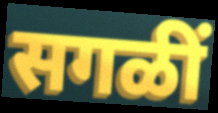
सगळीं